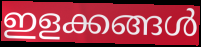
ഇളക്കങ്ങൾ